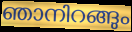
ഞാനിറങ്ങും